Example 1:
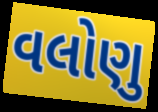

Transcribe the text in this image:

વલોણુ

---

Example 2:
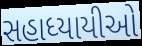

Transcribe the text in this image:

સહાધ્યાયીઓ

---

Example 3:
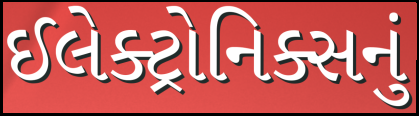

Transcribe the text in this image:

ઈલેક્ટ્રોનિક્સનું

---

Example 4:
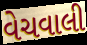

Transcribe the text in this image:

વેચવાલી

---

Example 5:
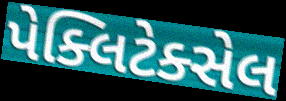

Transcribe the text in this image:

પેક્લિટેક્સેલ